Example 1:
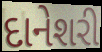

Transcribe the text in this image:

દાનેશરી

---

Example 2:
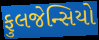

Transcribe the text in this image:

ફુલજેન્સિયો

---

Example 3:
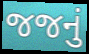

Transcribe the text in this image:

જજનું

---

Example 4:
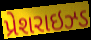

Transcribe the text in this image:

પ્રેશરાઇઝ્ડ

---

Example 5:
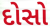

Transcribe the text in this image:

દોસો